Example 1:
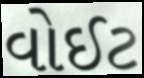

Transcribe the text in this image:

વોઈટ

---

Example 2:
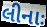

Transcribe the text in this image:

લીનાઃ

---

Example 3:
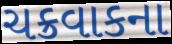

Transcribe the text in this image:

ચક્રવાકના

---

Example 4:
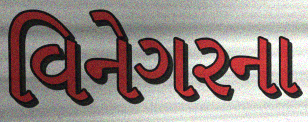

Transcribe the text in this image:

વિનેગરના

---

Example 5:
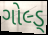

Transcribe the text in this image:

ગોલ્ડ્